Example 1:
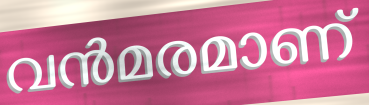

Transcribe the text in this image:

വൻമരമാണ്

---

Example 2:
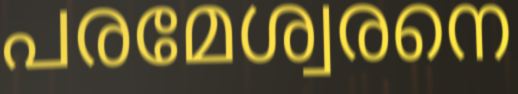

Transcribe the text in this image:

പരമേശ്വരനെ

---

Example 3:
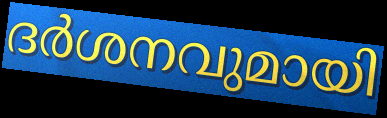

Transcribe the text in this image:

ദർശനവുമായി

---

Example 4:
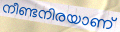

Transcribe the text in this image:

നീണ്ടനിരയാണ്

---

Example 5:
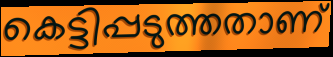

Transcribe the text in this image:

കെട്ടിപ്പടുത്തതാണ്